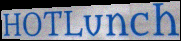
HOTLunch